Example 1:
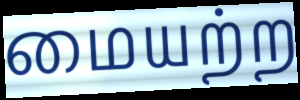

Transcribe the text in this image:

மையற்ற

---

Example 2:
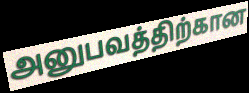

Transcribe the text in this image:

அனுபவத்திற்கான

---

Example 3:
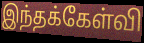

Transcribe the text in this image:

இந்தக்கேள்வி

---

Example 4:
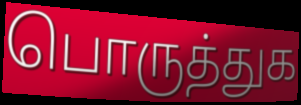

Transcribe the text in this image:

பொருத்துக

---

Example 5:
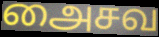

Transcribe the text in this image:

அைசவ